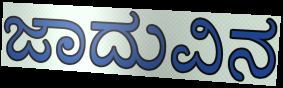
ಜಾದುವಿನ